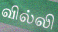
வில்லி